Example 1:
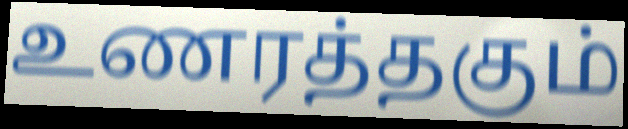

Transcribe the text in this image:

உணரத்தகும்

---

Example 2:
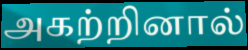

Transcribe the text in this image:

அகற்றினால்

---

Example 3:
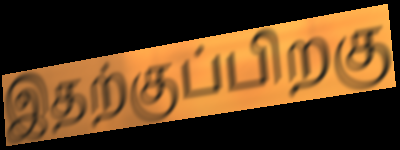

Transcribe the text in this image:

இதற்குப்பிறகு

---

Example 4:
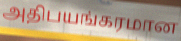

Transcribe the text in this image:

அதிபயங்கரமான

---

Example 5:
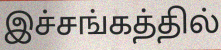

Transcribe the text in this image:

இச்சங்கத்தில்